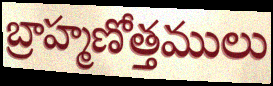
బ్రాహ్మణోత్తములు